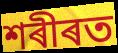
শৰীৰত